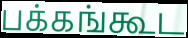
பக்கங்கூட